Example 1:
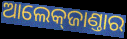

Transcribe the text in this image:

ଆଲେକ୍‌ଜାଣ୍ତାର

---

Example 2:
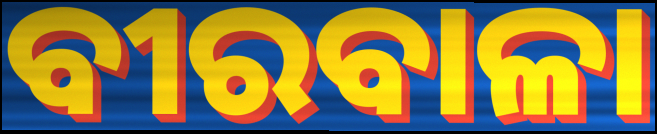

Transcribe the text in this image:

ବୀରବାଳା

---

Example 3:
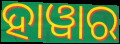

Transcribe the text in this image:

ହାୱାର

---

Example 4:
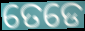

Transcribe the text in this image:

ତେଡେ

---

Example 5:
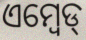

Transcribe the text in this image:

ଏମ୍ବେଡ୍